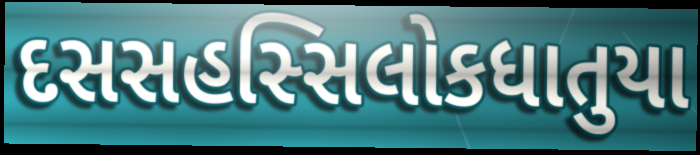
દસસહસ્સિલોકધાતુયા